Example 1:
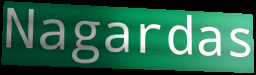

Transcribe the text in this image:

Nagardas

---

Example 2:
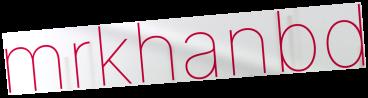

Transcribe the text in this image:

mrkhanbd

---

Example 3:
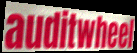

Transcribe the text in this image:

auditwheel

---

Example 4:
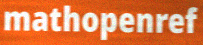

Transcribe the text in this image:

mathopenref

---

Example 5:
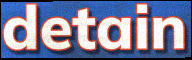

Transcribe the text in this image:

detain